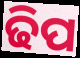
ଢିପ